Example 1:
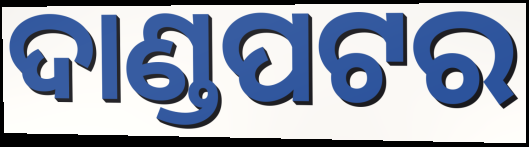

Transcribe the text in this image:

ଦାଣ୍ଡପଟର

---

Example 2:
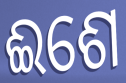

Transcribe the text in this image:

ଈଶେ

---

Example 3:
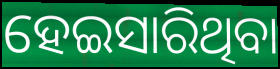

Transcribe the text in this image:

ହେଇସାରିଥିବା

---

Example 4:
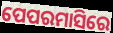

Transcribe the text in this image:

ପେପରମାସିରେ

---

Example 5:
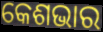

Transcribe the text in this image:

କେଶଭାର